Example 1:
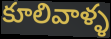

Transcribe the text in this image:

కూలివాళ్ళ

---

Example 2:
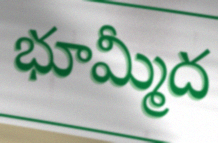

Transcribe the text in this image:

భూమ్మీద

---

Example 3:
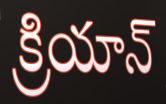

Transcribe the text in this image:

క్రియాన్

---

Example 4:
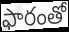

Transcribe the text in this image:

ఫారంతో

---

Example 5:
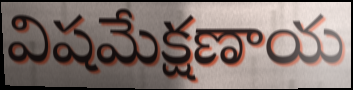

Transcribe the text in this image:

విషమేక్షణాయ